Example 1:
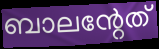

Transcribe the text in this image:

ബാലന്റേത്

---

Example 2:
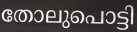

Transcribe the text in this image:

തോലുപൊട്ടി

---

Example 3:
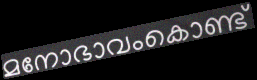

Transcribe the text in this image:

മനോഭാവംകൊണ്ട്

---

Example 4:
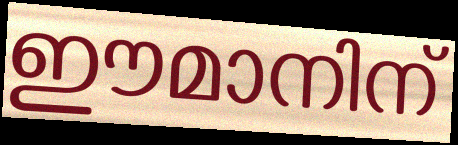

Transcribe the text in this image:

ഈമാനിന്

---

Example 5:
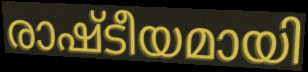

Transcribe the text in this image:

രാഷ്ടീയമായി